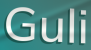
Guli